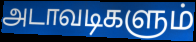
அடாவடிகளும்